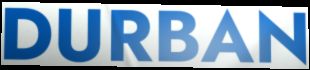
DURBAN